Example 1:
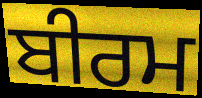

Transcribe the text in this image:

ਬੀਰਮ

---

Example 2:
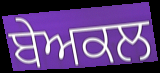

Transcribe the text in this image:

ਬੇਅਕਲ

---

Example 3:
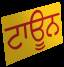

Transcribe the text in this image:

ਟਾਊਨ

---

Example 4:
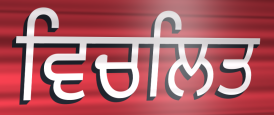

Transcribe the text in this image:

ਵਿਚਲਿਤ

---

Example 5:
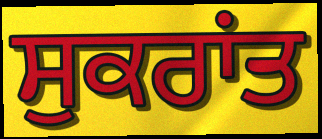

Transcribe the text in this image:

ਸੁਕਰਾਂਤ